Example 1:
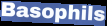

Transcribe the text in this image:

Basophils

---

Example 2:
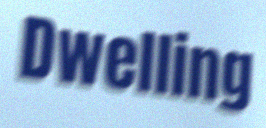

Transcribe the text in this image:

Dwelling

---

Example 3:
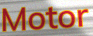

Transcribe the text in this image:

Motor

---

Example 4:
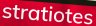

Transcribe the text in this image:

stratiotes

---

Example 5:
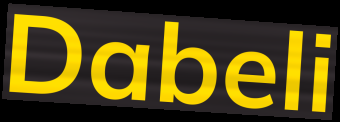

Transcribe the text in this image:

Dabeli